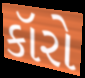
કૉરો